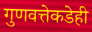
गुणवत्तेकडेही